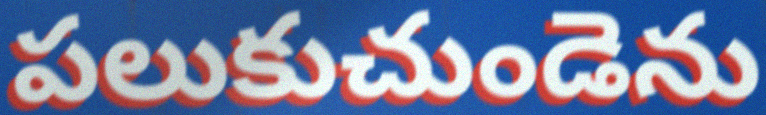
పలుకుచుండెను